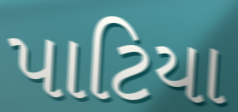
પાટિયા